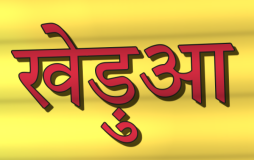
खेड़ुआ